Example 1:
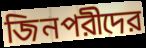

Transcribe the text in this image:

জিনপরীদের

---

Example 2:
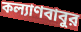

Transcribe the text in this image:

কল্যাণবাবুর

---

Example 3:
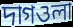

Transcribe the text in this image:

দাগওলা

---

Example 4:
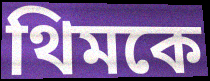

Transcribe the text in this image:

থিমকে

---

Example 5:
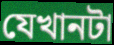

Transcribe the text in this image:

যেখানটা